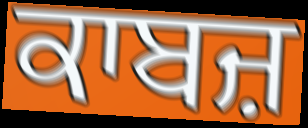
ਕਾਬਜ਼